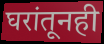
घरांतूनही